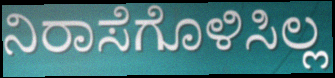
ನಿರಾಸೆಗೊಳಿಸಿಲ್ಲ